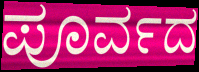
ಪೂರ್ವದ